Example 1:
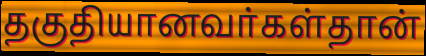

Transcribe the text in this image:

தகுதியானவர்கள்தான்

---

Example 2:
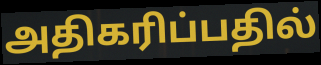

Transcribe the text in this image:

அதிகரிப்பதில்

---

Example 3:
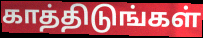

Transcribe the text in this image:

காத்திடுங்கள்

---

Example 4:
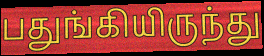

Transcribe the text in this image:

பதுங்கியிருந்து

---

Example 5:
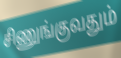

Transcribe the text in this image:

சிணுங்குவதும்